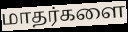
மாதர்களை